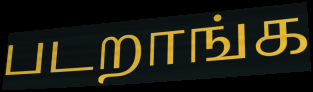
படறாங்க